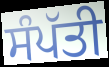
ਸੰਪੱਤੀ